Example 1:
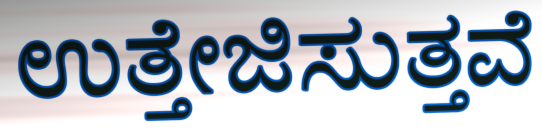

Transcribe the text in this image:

ಉತ್ತೇಜಿಸುತ್ತವೆ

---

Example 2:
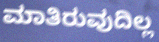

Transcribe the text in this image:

ಮಾತಿರುವುದಿಲ್ಲ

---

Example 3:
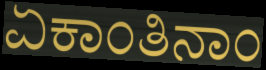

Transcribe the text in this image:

ಏಕಾಂತಿನಾಂ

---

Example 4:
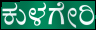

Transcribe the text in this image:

ಕುಳಗೇರಿ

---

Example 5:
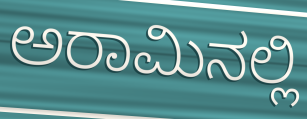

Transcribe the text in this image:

ಅರಾಮಿನಲ್ಲಿ